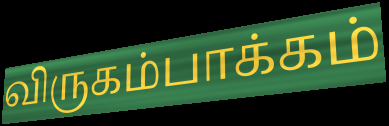
விருகம்பாக்கம்